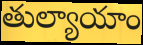
తుల్యాయాం